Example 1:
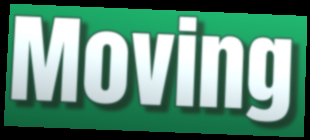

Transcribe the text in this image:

Moving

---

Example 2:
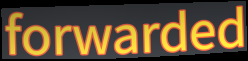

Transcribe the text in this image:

forwarded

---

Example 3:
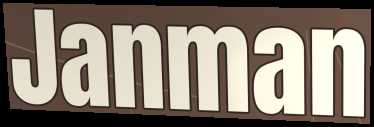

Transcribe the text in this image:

Janman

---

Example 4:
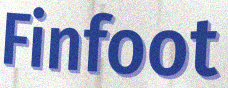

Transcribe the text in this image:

Finfoot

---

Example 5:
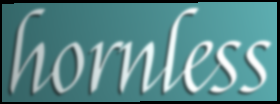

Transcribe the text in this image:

hornless